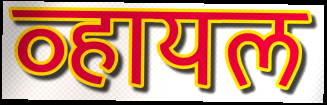
व्हायल